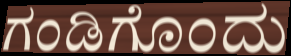
ಗಂಡಿಗೊಂದು